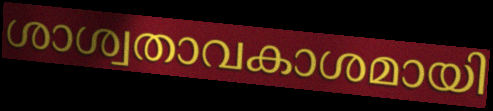
ശാശ്വതാവകാശമായി